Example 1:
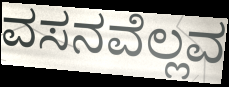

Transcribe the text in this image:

ವಸನವೆಲ್ಲವ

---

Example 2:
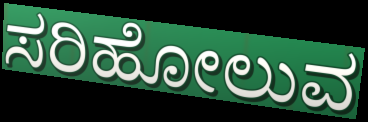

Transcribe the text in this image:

ಸರಿಹೋಲುವ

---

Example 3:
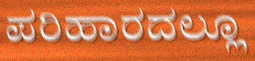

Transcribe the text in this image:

ಪರಿಹಾರದಲ್ಲೂ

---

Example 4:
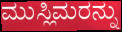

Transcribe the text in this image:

ಮುಸ್ಲಿಮರನ್ನು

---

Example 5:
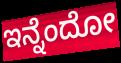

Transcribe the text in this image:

ಇನ್ನೆಂದೋ